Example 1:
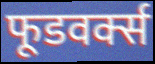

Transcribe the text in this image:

फूडवर्क्स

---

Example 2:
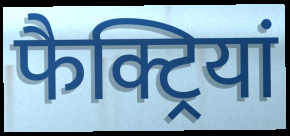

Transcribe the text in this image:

फैक्ट्रियां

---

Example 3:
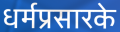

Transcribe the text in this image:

धर्मप्रसारके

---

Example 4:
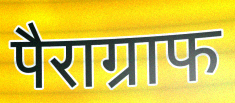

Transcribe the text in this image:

पैराग्राफ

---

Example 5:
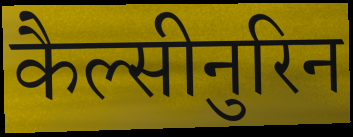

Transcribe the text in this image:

कैल्सीनुरिन